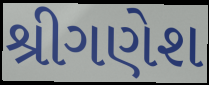
શ્રીગણેશ